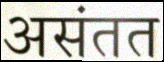
असंतत